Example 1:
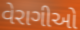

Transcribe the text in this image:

વેરાગીઓ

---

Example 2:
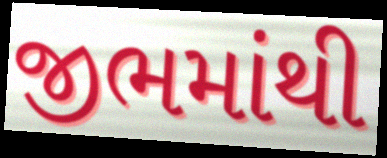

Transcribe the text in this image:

જીભમાંથી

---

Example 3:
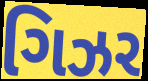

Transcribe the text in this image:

ગિઝર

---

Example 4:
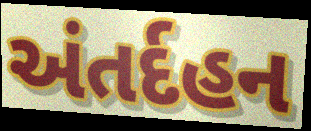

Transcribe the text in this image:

અંતર્દહન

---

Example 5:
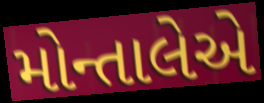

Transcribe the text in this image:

મોન્તાલેએ